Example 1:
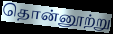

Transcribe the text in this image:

தொன்னூற்று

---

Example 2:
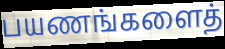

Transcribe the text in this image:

பயணங்களைத்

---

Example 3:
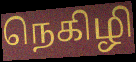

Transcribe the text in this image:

நெகிழி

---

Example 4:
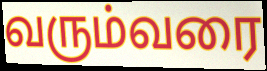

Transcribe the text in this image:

வரும்வரை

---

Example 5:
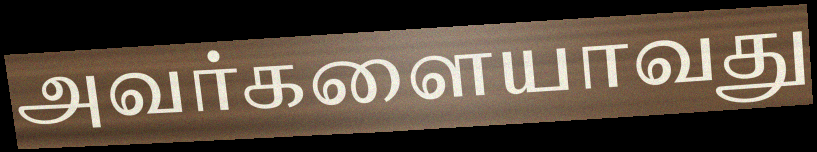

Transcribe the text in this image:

அவர்களையாவது